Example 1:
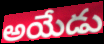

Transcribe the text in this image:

అయేడు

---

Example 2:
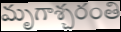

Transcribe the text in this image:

మృగాశ్చరంతి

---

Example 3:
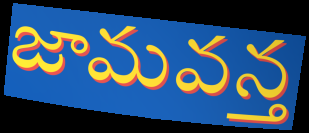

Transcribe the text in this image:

జామవన్త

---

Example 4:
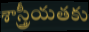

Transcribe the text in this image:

శాస్త్రీయతకు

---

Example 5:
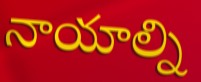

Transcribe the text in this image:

నాయాల్ని